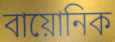
বায়োনিক